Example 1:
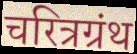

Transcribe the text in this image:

चरित्रग्रंथ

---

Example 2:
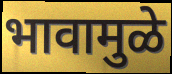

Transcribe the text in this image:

भावामुळे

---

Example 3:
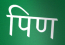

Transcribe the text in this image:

पिण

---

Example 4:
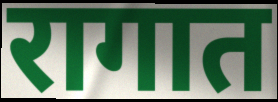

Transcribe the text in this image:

रागात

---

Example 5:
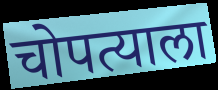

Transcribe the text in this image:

चोपत्याला